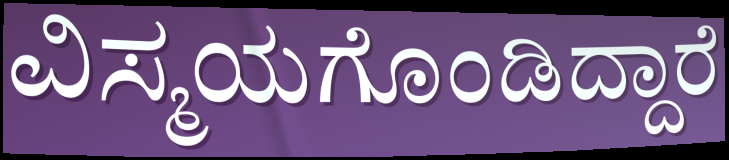
ವಿಸ್ಮಯಗೊಂಡಿದ್ದಾರೆ